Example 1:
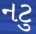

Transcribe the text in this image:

નટુ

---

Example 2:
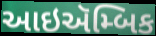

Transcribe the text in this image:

આઇઍમ્બિક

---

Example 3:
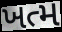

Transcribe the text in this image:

ખત્મ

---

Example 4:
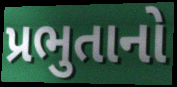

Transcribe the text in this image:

પ્રભુતાનો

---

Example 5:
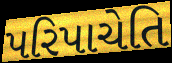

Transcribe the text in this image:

પરિપાચેતિ